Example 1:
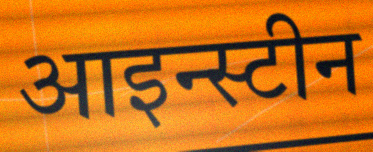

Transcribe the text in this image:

आइन्स्टीन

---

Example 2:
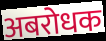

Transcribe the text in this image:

अबरोधक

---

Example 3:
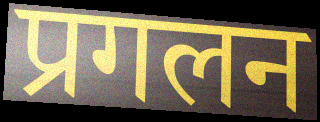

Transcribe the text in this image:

प्रगलन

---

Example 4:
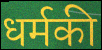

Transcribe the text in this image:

धर्मकी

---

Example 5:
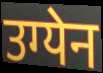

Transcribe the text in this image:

उग्येन